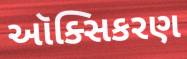
ઑક્સિકરણ